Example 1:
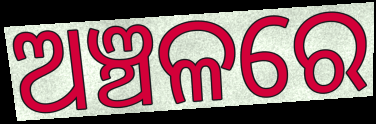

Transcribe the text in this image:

ଅଞ୍ଚଳରେ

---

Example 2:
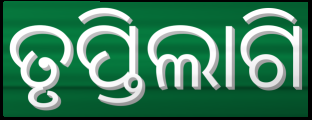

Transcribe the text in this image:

ତୃପ୍ତିଲାଗି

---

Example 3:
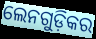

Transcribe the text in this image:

ଲେନଗୁଡ଼ିକର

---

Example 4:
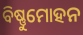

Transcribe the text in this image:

ବିଷ୍ଣୁମୋହନ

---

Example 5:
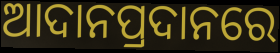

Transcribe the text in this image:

ଆଦାନପ୍ରଦାନରେ